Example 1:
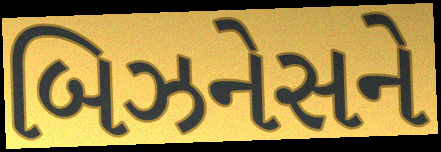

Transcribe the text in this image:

બિઝનેસને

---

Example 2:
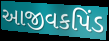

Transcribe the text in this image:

આજીવકપિંડ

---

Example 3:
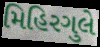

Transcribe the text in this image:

મિહિરગુલે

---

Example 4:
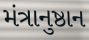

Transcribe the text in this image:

મંત્રાનુષ્ઠાન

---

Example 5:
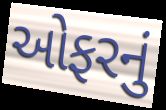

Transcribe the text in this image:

ઓફરનું